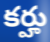
కర్హు